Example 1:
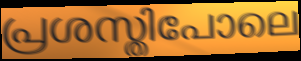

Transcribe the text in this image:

പ്രശസ്തിപോലെ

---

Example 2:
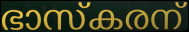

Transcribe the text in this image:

ഭാസ്‌കരന്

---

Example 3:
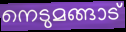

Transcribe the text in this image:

നെടുമങ്ങാട്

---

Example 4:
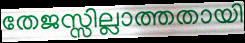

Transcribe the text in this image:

തേജസ്സില്ലാത്തതായി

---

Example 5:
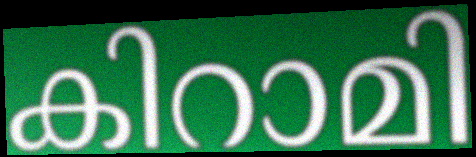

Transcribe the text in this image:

കിറാമി